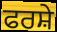
ਫਰਸ਼ੇ